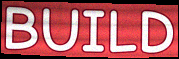
BUILD